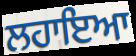
ਲਹਾਇਆ